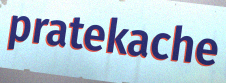
pratekache